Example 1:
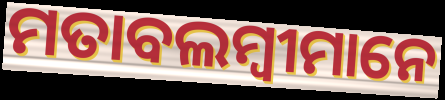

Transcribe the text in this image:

ମତାବଲମ୍ବୀମାନେ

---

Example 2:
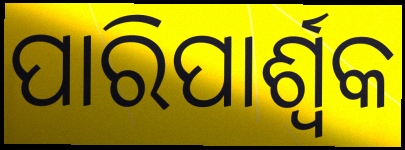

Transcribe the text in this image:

ପାରିପାର୍ଶ୍ବକ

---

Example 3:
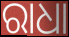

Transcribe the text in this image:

ରାଧା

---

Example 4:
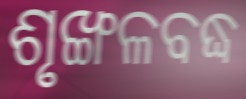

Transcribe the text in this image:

ଶୃଙ୍ଖଳବଦ୍ଧ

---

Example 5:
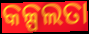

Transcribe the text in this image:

କଳ୍ପଲତା